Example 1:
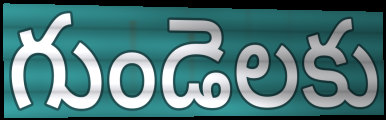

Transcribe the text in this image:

గుండెలకు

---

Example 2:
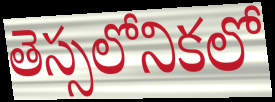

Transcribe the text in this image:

తెస్సలోనికలో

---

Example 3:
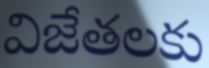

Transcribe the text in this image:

విజేతలకు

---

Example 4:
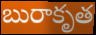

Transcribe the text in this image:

బురాకృత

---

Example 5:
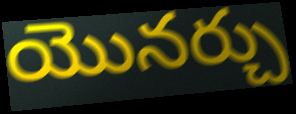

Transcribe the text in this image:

యొనర్చు